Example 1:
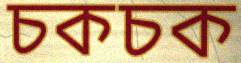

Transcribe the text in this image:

চকচক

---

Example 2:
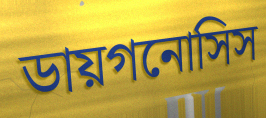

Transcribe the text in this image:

ডায়গনোসিস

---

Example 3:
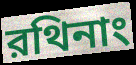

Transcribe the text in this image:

রথিনাং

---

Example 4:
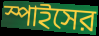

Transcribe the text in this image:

স্পাইসের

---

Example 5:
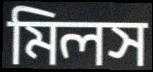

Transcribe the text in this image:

মিলস